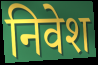
निवेश